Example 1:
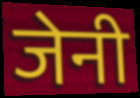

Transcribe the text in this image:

जेनी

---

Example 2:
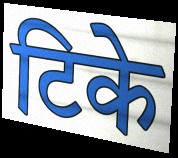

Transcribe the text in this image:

टिके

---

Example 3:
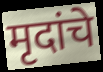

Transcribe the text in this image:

मृदांचे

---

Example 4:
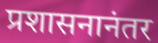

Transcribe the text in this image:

प्रशासनानंतर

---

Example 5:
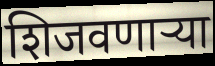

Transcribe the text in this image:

शिजवणाऱ्या